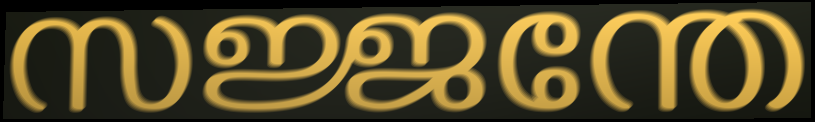
സജ്ജന്തേ